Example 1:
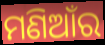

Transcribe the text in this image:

ମଣିଆଁର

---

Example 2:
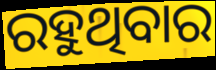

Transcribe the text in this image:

ରହୁଥିବାର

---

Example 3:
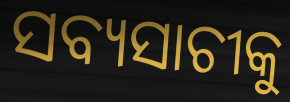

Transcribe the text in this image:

ସବ୍ୟସାଚୀକୁ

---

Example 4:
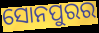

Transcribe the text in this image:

ସୋନପୁରର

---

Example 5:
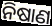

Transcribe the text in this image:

ନିଷାଣ